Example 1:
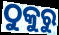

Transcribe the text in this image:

ଠୁକୁରୁ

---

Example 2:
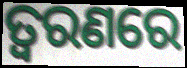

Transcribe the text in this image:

ତ୍ଵରଣରେ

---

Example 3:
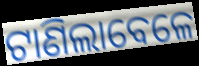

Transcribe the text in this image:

ଟାଣିଲାବେଳେ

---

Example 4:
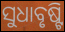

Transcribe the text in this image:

ସୁଧାବୃଷ୍ଟି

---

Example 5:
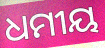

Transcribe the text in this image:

ଧମୀୟ